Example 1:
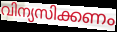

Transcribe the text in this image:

വിന്യസിക്കണം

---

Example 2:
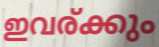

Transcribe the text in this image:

ഇവര്ക്കും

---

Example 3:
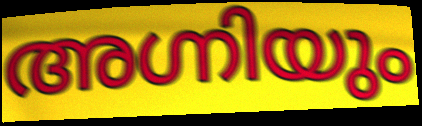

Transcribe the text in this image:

അഗ്നിയും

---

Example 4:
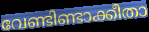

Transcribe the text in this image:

വേണ്ടിണ്ടാക്കീതാ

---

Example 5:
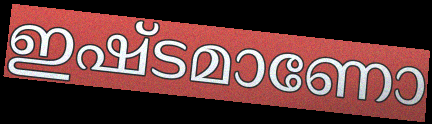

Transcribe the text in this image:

ഇഷ്ടമാണോ